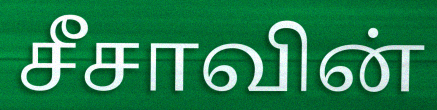
சீசாவின்